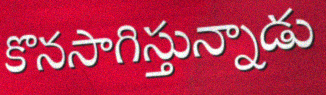
కొనసాగిస్తున్నాడు